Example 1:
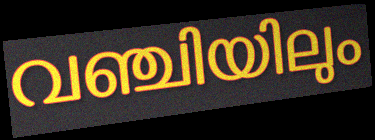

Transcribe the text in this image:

വഞ്ചിയിലും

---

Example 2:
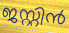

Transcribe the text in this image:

ജസ്റ്റിൻ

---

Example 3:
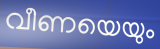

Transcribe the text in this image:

വീണയെയും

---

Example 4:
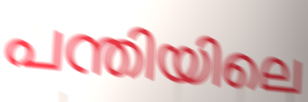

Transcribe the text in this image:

പന്തിയിലെ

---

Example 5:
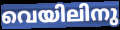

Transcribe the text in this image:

വെയിലിനു